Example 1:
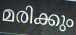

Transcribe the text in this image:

മരിക്കും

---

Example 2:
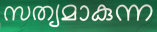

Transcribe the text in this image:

സത്യമാകുന്ന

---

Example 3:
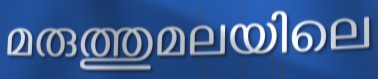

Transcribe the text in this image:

മരുത്തുമലയിലെ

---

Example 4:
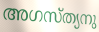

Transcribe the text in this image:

അഗസ്ത്യനു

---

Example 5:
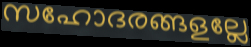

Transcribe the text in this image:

സഹോദരങ്ങളല്ലേ